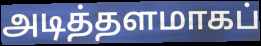
அடித்தளமாகப்